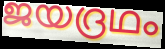
ജയദ്രഥം